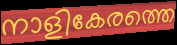
നാളികേരത്തെ